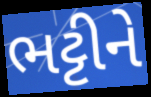
ભટ્ટીને